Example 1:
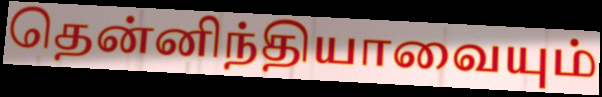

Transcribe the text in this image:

தென்னிந்தியாவையும்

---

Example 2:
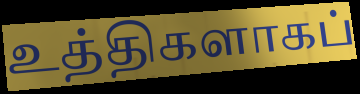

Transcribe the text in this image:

உத்திகளாகப்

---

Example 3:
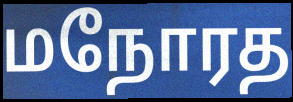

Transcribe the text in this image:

மநோரத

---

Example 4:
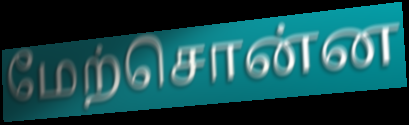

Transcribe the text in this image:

மேற்சொன்ன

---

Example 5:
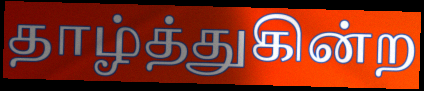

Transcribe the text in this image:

தாழ்த்துகின்ற